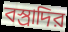
বস্ত্রাদির